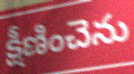
క్షీణించెను